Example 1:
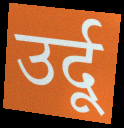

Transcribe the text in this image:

उर्दू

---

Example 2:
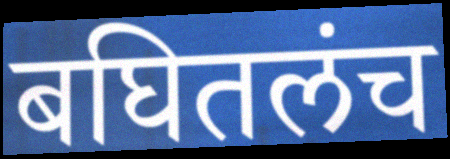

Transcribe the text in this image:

बघितलंच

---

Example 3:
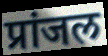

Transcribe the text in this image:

प्रांजल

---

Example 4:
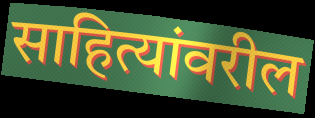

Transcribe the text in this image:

साहित्यांवरील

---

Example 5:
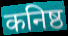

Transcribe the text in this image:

कनिष्ठ